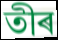
তীৰ